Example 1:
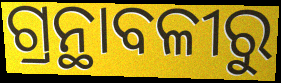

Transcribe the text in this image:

ଗ୍ରନ୍ଥାବଳୀରୁ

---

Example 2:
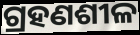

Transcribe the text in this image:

ଗ୍ରହଣଶୀଳ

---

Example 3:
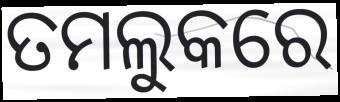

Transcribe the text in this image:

ତମଲୁକରେ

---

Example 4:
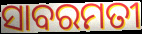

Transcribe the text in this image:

ସାବରମତୀ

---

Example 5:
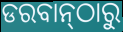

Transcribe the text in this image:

ଡରବାନ୍‌ଠାରୁ